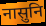
नासुनि